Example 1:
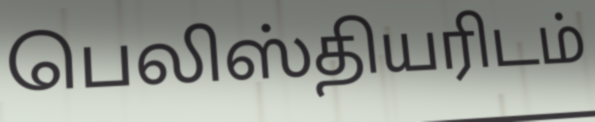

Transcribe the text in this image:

பெலிஸ்தியரிடம்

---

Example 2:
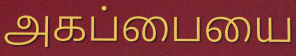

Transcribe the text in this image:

அகப்பையை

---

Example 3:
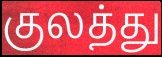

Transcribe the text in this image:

குலத்து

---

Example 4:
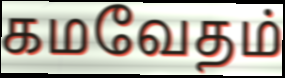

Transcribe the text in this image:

கமவேதம்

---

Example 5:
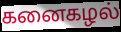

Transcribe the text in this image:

கனைகழல்